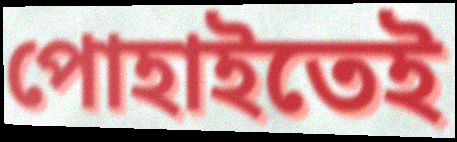
পোহাইতেই